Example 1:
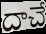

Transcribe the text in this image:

దాచే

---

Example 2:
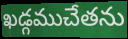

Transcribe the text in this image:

ఖడ్గముచేతను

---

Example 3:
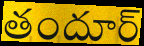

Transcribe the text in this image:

తందూర్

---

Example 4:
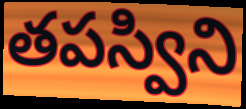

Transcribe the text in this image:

తపస్విని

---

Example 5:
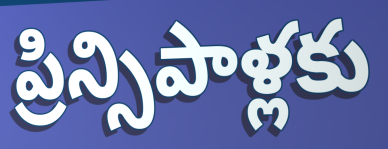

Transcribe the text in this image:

ప్రిన్సిపాళ్లకు